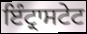
ਇੰਟ੍ਰਾਸਟੇਟ